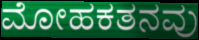
ಮೋಹಕತನವು